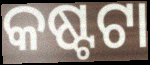
କଷ୍ଟଟା